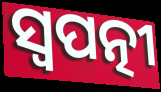
ସ୍ୱପତ୍ନୀ